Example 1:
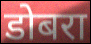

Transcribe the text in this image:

डोबरा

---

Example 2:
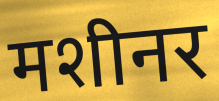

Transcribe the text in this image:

मशीनर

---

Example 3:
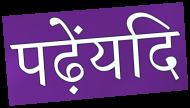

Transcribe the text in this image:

पढ़ेंयदि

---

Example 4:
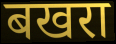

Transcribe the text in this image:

बखरा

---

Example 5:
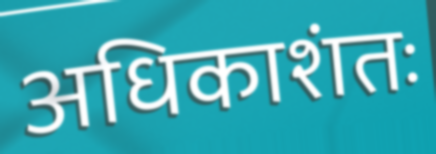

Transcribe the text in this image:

अधिकाशंतः